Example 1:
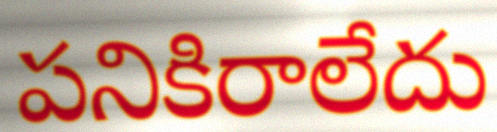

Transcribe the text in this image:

పనికిరాలేదు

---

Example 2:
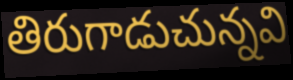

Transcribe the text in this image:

తిరుగాడుచున్నవి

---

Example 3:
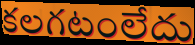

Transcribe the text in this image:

కలగటంలేదు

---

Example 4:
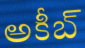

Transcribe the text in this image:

అకీబ్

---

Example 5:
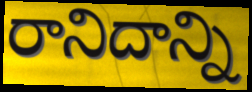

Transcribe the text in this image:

రానిదాన్ని